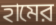
হামের